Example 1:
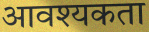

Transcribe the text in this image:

आवश्‍यकता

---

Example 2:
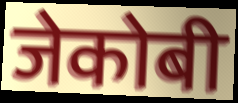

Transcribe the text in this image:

जेकोबी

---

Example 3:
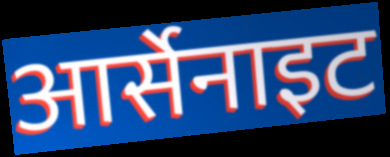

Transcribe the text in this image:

आर्सेनाइट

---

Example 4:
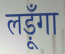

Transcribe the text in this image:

लड़ूँगा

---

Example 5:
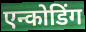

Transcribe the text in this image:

एन्कोडिंग